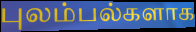
புலம்பல்களாக